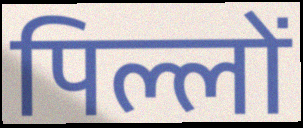
पिल्लों